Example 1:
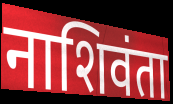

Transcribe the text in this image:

नाशिवंता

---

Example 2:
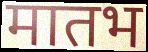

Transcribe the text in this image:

मातभ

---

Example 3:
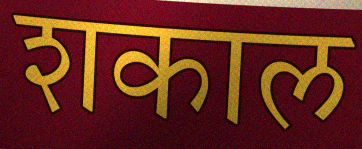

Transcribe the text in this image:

शकाल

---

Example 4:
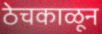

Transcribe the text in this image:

ठेचकाळून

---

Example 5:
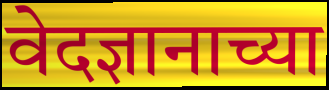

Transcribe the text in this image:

वेदज्ञानाच्या